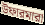
উফারমারা